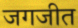
जगजीत